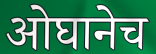
ओघानेच